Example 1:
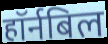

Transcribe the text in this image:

हॉर्नबिल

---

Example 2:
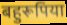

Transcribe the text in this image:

बहुरूपिया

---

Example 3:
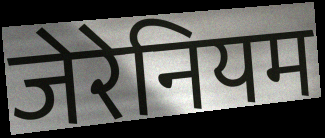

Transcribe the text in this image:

जेरेनियम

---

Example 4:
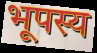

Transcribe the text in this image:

भूपस्य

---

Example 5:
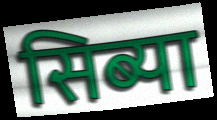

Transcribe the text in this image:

सिब्या